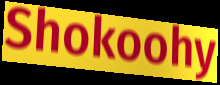
Shokoohy